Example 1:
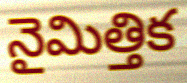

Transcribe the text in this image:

నైమిత్తిక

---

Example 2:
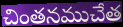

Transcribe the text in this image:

చింతనముచేత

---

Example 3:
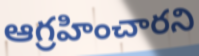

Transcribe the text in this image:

ఆగ్రహించారని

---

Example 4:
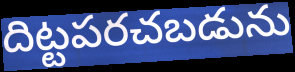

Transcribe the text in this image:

దిట్టపరచబడును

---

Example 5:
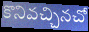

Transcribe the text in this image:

కొనివచ్చినచో